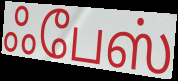
ஃபேஸ்